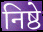
निष्ठे